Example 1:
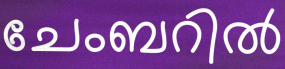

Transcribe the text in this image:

ചേംബറിൽ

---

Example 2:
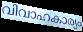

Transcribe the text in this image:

വിവാഹകാര്യം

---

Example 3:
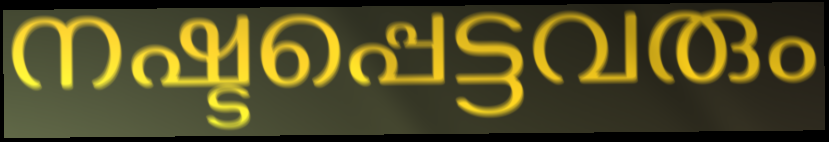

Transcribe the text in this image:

നഷ്ടപ്പെട്ടവരും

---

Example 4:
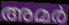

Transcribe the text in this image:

അമർ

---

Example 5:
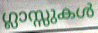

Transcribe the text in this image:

ഗ്ലാസ്സുകൾ